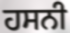
ਹਸਨੀ